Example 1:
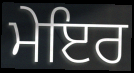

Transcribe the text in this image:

ਮੇਇਰ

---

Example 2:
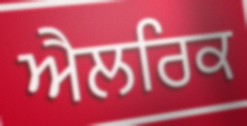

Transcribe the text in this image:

ਐਲਰਿਕ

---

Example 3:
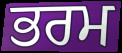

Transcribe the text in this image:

ਭਰਮ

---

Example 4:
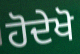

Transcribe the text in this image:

ਹੋਦੇਖੋ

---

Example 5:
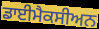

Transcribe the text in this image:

ਡਾਈਮੈਕਸੀਅਨ